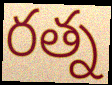
రత్న